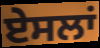
ਏਸਲਾਂ